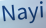
Nayi